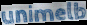
unimelb